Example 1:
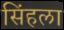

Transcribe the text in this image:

सिंहला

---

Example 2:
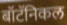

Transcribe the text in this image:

बॉटॅनिकल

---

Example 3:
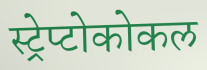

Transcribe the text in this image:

स्ट्रेप्टोकोकल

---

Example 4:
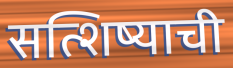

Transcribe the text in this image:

सत्शिष्याची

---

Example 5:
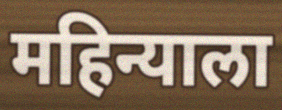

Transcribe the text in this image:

महिन्याला